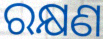
ରକ୍ଷଣ